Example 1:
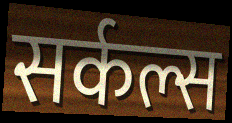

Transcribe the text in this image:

सर्कल्स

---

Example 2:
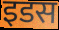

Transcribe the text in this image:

इडस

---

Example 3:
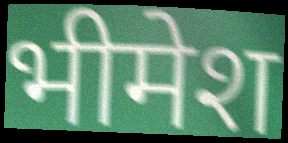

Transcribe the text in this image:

भीमेश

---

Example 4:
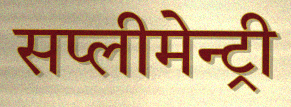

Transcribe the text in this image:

सप्लीमेन्ट्री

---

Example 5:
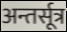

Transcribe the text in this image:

अन्तर्सूत्र